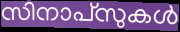
സിനാപ്സുകൾ